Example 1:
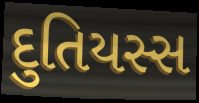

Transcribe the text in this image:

દુતિયસ્સ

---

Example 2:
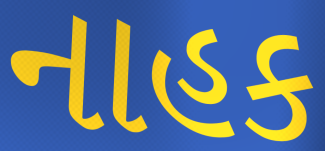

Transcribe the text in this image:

નાહક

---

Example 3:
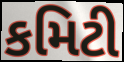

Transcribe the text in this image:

કમિટી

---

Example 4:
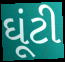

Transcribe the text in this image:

ઘૂંટી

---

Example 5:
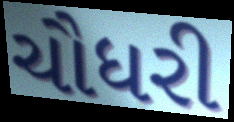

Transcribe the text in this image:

ચૌધરી